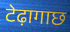
टेढ़ागाछ